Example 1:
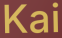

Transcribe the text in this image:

Kai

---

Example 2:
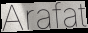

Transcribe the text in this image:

Arafat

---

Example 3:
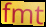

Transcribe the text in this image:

fmt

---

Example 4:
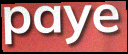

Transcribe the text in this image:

paye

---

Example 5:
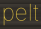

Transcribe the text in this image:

pelt